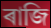
ৰাজি